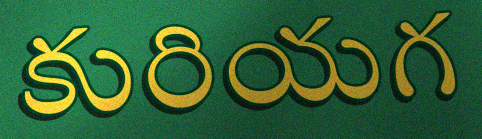
కురియగ